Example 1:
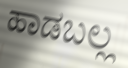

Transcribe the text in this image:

ಹಾಡಬಲ್ಲ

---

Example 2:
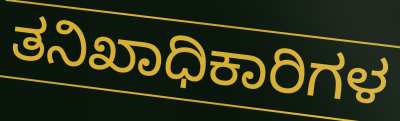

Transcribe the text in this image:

ತನಿಖಾಧಿಕಾರಿಗಳ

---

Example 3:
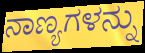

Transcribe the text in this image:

ನಾಣ್ಯಗಳನ್ನು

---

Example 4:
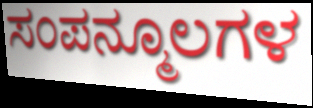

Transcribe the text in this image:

ಸಂಪನ್ಮೂಲಗಳ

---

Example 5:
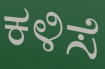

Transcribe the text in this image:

ಕಳಿಸೆ